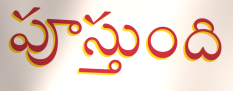
పూస్తుంది